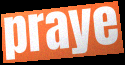
praye